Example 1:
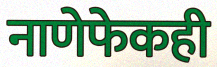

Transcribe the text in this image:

नाणेफेकही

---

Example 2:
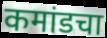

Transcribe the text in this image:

कमांडचा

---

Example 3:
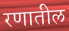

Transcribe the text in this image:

रणातील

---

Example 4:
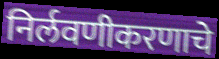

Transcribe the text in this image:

निर्लवणीकरणाचे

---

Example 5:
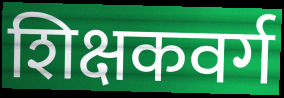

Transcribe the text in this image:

शिक्षकवर्ग